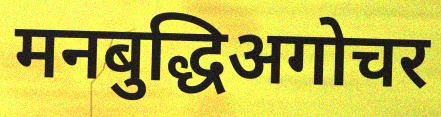
मनबुद्धिअगोचर